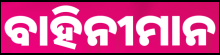
ବାହିନୀମାନ